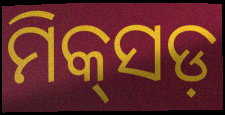
ମିକ୍‌ସଡ଼